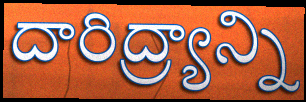
దారిద్ర్యాన్ని